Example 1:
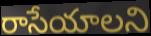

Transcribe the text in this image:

రాసేయాలని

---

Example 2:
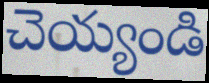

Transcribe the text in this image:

చెయ్యండి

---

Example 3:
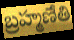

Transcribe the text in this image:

బ్రహ్మణేతి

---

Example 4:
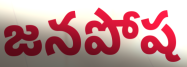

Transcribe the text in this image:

జనపోష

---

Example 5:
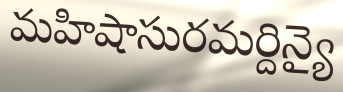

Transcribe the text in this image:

మహిషాసురమర్దిన్యై